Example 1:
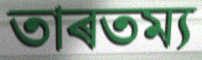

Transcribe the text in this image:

তাৰতম্য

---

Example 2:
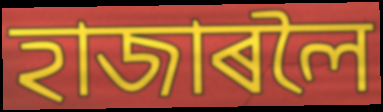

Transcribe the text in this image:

হাজাৰলৈ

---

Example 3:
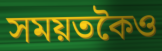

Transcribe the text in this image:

সময়তকৈও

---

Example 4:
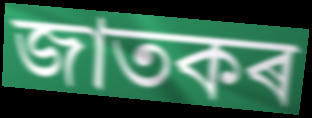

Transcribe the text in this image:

জাতকৰ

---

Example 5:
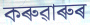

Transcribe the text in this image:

কৰুৱাৰুৰ